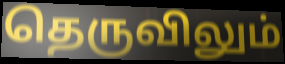
தெருவிலும்